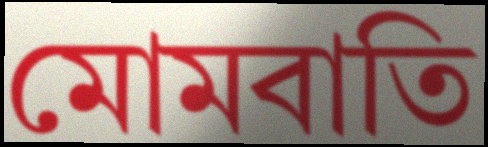
মোমবাতি